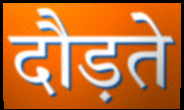
दौड़ते